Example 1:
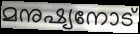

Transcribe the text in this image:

മനുഷ്യനോട്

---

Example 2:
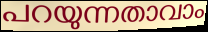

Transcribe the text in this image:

പറയുന്നതാവാം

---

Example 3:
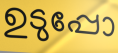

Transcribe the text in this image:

ഉടുപ്പോ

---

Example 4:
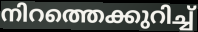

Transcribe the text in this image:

നിറത്തെക്കുറിച്ച്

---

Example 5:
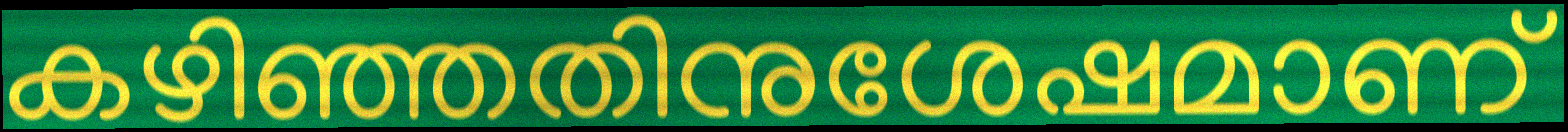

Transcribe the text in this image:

കഴിഞ്ഞതിനുശേഷമാണ്